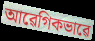
আৱেগিকভাৱে